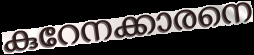
കുറേനക്കാരനെ